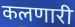
कलणारी